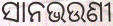
ସାନଭଉଣୀ